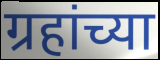
ग्रहांच्या